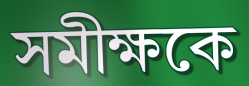
সমীক্ষকে